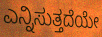
ಎನ್ನಿಸುತ್ತದೆಯೇ